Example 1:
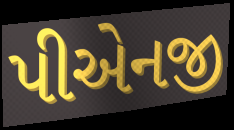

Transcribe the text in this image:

પીએનજી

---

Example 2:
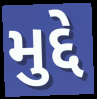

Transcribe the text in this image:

મુદ્દે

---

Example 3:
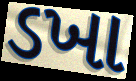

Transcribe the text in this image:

ડખા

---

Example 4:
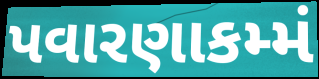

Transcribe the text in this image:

પવારણાકમ્મં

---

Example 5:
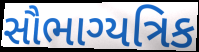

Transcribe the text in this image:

સૌભાગ્યત્રિક